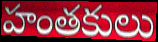
హంతకులు